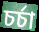
চৰ্চা